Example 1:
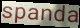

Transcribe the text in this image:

spanda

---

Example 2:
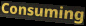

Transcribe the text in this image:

Consuming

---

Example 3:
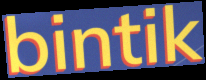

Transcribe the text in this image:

bintik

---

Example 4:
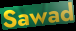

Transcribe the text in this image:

Sawad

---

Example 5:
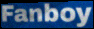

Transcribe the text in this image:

Fanboy